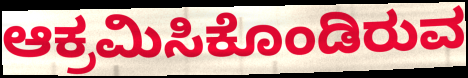
ಆಕ್ರಮಿಸಿಕೊಂಡಿರುವ